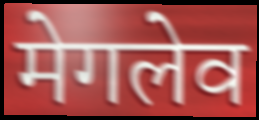
मेगलेव